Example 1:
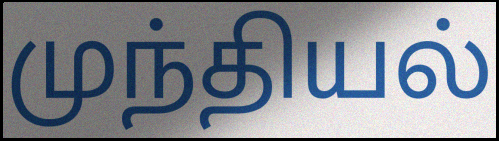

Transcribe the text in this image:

முந்தியல்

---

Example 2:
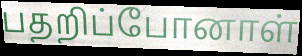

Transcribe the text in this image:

பதறிப்போனாள்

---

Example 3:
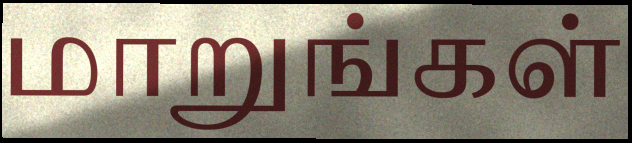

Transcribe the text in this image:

மாறுங்கள்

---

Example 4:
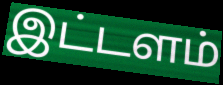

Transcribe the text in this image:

இட்டளம்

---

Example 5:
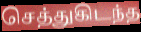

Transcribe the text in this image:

செத்துகிடந்த